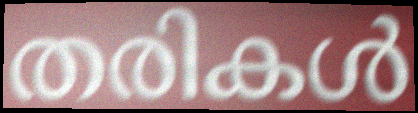
തരികൾ